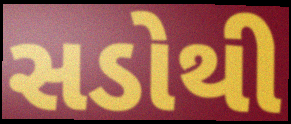
સડોથી